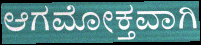
ಆಗಮೋಕ್ತವಾಗಿ